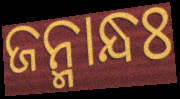
ଜନ୍ମାନ୍ଧଃ